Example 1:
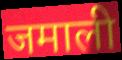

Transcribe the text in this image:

जमाली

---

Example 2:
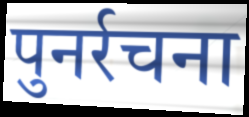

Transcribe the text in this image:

पुनर्रचना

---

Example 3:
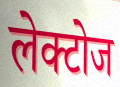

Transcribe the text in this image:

लेक्टोज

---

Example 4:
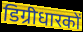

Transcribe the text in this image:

डिग्रीधारकों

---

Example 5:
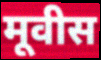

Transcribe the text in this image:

मूवीस